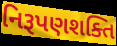
નિરૂપણશક્તિ